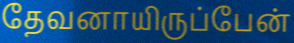
தேவனாயிருப்பேன்